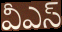
వీఎస్